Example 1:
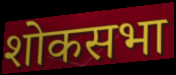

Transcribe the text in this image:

शोकसभा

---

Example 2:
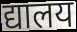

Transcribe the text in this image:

द्यालय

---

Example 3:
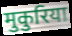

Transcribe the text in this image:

मुकुरिया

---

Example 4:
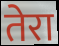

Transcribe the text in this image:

तेरा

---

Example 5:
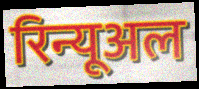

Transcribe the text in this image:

रिन्यूअल